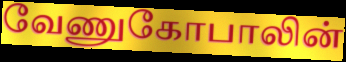
வேணுகோபாலின்